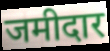
जमीदार